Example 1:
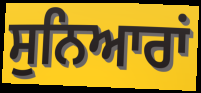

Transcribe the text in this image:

ਸੁਨਿਆਰਾਂ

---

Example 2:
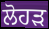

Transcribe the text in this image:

ਲੋਹੜ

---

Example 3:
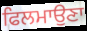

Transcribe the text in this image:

ਫਿਲਮਾਉਣਾ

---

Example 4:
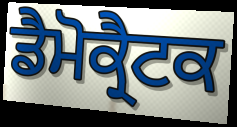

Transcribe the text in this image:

ਡੈਮੋਕ੍ਰੈਟਕ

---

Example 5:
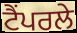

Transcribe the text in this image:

ਟੈਂਪਰਲੇ